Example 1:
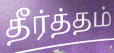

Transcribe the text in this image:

தீர்த்தம்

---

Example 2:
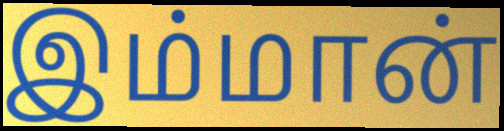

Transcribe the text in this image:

இம்மான்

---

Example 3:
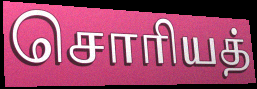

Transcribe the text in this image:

சொரியத்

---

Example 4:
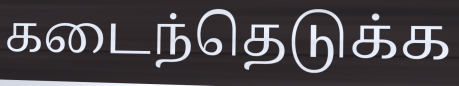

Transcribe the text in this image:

கடைந்தெடுக்க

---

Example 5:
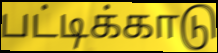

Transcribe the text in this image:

பட்டிக்காடு